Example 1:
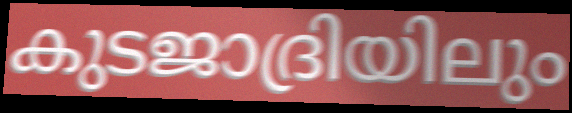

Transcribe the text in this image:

കുടജാദ്രിയിലും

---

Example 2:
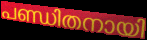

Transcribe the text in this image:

പണ്ഡിതനായി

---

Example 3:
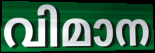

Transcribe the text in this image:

വിമാന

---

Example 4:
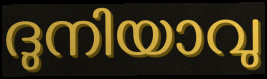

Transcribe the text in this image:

ദുനിയാവു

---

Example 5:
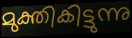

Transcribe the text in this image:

മുക്തികിട്ടുന്നു